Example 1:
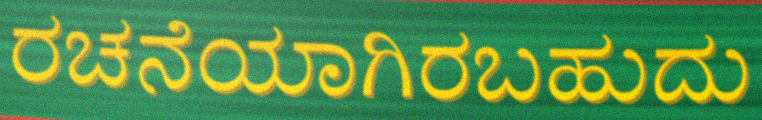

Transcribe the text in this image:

ರಚನೆಯಾಗಿರಬಹುದು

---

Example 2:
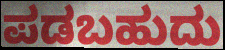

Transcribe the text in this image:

ಪಡಬಹುದು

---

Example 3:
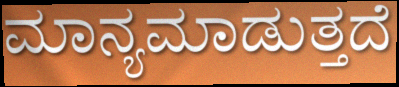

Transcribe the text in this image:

ಮಾನ್ಯಮಾಡುತ್ತದೆ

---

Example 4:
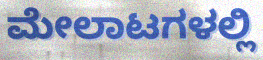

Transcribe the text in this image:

ಮೇಲಾಟಗಳಲ್ಲಿ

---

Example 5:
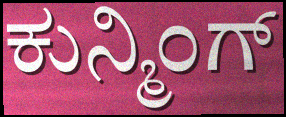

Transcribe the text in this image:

ಕುನ್ಮಿಂಗ್